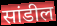
सांडील